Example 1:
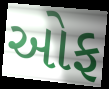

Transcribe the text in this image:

ઓફ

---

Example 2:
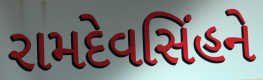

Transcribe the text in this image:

રામદેવસિંહને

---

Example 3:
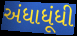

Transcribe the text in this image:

અંધાધૂંધી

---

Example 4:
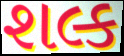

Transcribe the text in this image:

શલ્ક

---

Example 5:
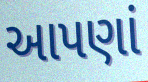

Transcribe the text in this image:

આપણાં